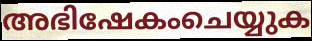
അഭിഷേകംചെയ്യുക